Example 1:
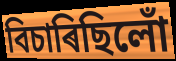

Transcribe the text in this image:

বিচাৰিছিলোঁ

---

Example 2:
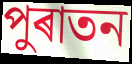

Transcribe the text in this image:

পুৰাতন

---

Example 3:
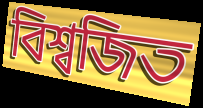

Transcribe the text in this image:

বিশ্বজিত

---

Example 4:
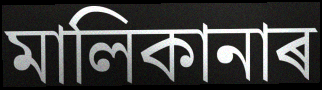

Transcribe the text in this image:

মালিকানাৰ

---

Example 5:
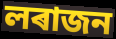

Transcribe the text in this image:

লৰাজন